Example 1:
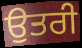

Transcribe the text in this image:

ਉਤਰੀ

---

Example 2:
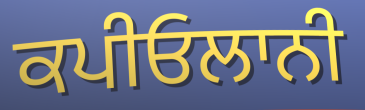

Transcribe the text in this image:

ਕਪੀਓਲਾਨੀ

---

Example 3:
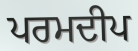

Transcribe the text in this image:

ਪਰਮਦੀਪ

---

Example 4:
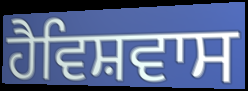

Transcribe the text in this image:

ਹੈਵਿਸ਼ਵਾਸ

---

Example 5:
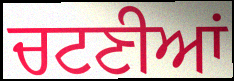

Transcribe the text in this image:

ਚਟਣੀਆਂ